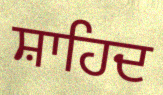
ਸ਼ਾਹਿਦ